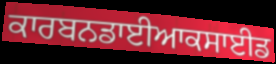
ਕਾਰਬਨਡਾਈਆਕਸਾਈਡ